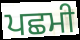
ਪਛਮੀ